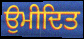
ਉਮੀਦਿਤ